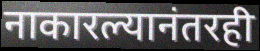
नाकारल्यानंतरही